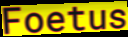
Foetus